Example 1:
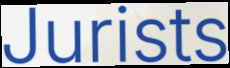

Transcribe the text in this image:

Jurists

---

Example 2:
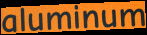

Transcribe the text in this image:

aluminum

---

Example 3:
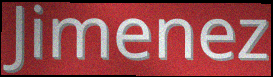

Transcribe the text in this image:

Jimenez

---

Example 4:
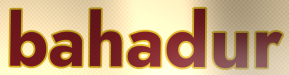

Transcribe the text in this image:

bahadur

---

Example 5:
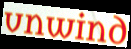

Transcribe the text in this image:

unwind